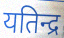
यतिन्द्र